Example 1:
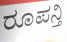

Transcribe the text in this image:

ರೂಪನ್ತಿ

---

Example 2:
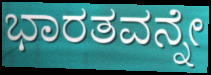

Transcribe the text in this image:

ಭಾರತವನ್ನೇ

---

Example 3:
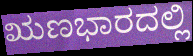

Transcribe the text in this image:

ಋಣಭಾರದಲ್ಲಿ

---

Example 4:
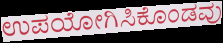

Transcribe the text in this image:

ಉಪಯೋಗಿಸಿಕೊಂಡವು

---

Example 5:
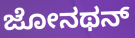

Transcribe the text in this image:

ಜೋನಥನ್